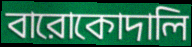
বারোকোদালি